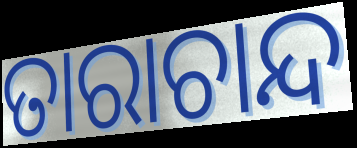
ତାରାଚାନ୍ଦ